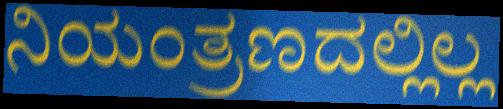
ನಿಯಂತ್ರಣದಲ್ಲಿಲ್ಲ